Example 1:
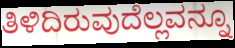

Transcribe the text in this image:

ತಿಳಿದಿರುವುದೆಲ್ಲವನ್ನೂ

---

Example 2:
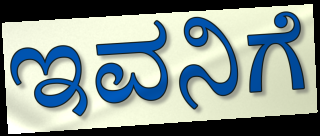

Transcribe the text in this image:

ಇವನಿಗೆ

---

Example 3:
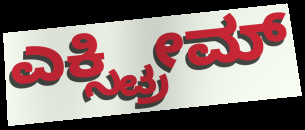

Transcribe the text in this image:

ಎಕ್ಸ್ಟ್ರೀಮ್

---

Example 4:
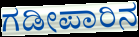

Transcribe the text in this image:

ಗಡೀಪಾರಿನ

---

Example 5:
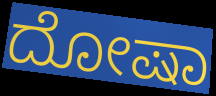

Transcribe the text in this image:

ದೋಷಾ